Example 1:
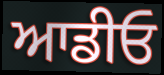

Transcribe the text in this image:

ਆਡੀਓ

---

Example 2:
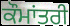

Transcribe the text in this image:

ਕੌਮਾਂਤਰੀ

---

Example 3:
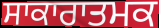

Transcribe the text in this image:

ਸਾਕਾਰਾਤਮਕ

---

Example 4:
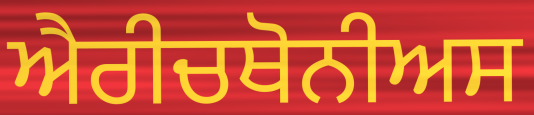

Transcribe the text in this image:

ਐਰੀਚਥੋਨੀਅਸ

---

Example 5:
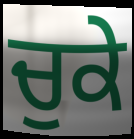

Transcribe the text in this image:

ਚੁਕੇ